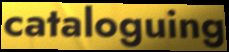
cataloguing